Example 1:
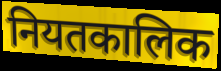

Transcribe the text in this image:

नियतकालिक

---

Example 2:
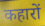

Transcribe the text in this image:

कहारों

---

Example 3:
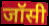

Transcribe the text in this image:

जॉसी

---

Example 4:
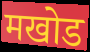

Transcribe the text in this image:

मखोड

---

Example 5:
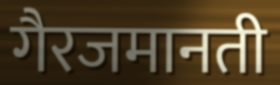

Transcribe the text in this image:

गैरजमानती